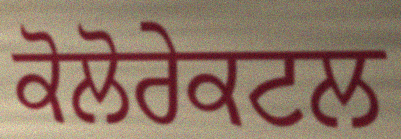
ਕੋਲੋਰੇਕਟਲ